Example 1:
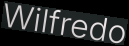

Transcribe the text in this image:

Wilfredo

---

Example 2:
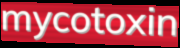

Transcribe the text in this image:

mycotoxin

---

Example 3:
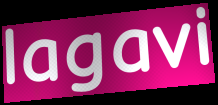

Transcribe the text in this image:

lagavi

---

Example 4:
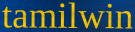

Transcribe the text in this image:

tamilwin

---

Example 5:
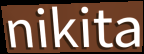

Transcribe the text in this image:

nikita